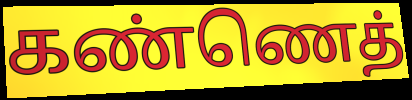
கண்ணெத்